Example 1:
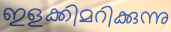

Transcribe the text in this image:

ഇളക്കിമറിക്കുന്നു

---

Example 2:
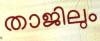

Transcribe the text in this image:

താജിലും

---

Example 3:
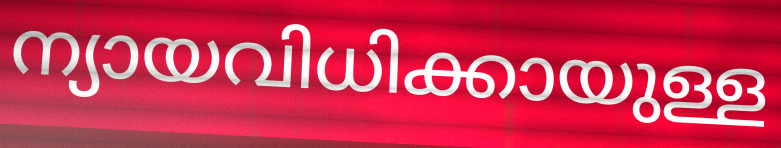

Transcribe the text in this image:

ന്യായവിധിക്കായുള്ള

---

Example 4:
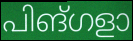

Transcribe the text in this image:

പിങ്ഗളാ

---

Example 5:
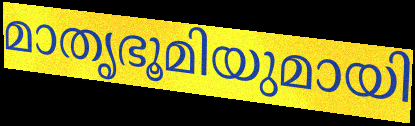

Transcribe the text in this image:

മാതൃഭൂമിയുമായി